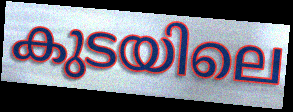
കുടയിലെ